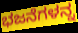
ಭಜನೆಗಳನ್ನ